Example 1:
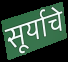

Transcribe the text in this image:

सूर्याचे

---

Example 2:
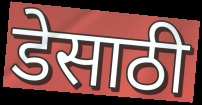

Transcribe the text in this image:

डेसाठी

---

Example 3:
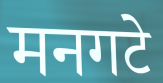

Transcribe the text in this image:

मनगटे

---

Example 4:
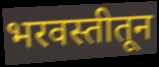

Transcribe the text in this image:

भरवस्तीतून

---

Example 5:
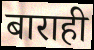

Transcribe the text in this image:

बाराही